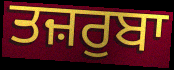
ਤਜ਼ਰੁਬਾ